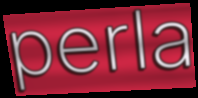
perla